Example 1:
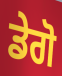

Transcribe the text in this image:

ਡੇਗੋ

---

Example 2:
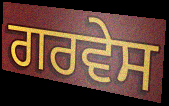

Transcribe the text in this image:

ਗਰਵੇਸ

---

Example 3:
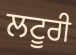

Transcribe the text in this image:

ਲਟੂਰੀ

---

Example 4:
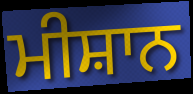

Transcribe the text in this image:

ਮੀਸ਼ਾਨ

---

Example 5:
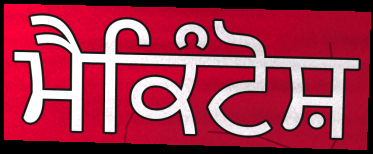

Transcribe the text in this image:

ਮੈਕਿੰਟੋਸ਼